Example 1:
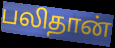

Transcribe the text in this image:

பலிதான்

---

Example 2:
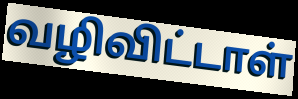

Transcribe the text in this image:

வழிவிட்டாள்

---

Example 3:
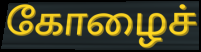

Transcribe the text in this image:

கோழைச்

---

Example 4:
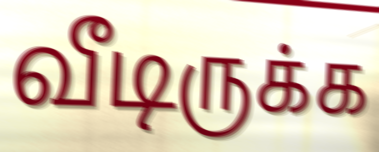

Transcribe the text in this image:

வீடிருக்க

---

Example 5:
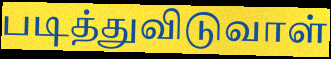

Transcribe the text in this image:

படித்துவிடுவாள்